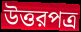
উত্তরপত্র